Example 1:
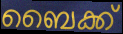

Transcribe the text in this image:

ബൈക്ക്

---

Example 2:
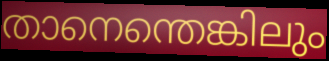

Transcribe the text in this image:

താനെന്തെങ്കിലും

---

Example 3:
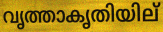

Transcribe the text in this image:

വൃത്താകൃതിയില്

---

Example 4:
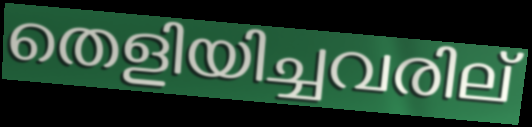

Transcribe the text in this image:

തെളിയിച്ചവരില്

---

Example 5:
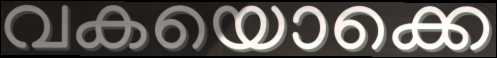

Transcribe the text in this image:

വകയൊക്കെ